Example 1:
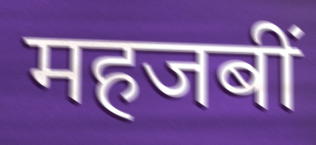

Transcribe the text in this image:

महजबीं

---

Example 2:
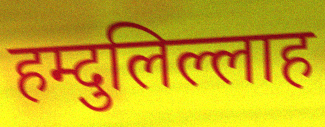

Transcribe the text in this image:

हम्दुलिल्लाह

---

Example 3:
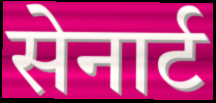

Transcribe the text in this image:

सेनार्ट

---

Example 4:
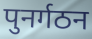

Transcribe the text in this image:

पुनर्गठन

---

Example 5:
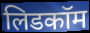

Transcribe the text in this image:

लिडकॉम